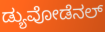
ಡ್ಯುವೋಡೆನಲ್